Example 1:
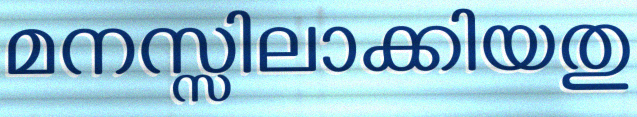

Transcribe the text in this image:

മനസ്സിലാക്കിയതു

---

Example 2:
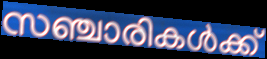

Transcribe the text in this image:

സഞ്ചാരികൾക്ക്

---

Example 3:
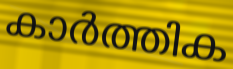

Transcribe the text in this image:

കാർത്തിക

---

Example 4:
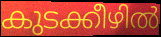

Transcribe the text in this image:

കുടക്കീഴിൽ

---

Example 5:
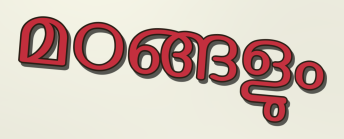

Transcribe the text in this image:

മഠങ്ങളും